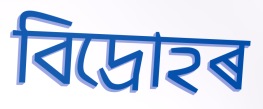
বিদ্ৰোহৰ